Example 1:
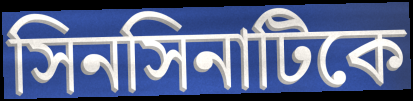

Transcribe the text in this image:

সিনসিনাটিকে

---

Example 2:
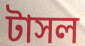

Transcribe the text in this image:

টাসল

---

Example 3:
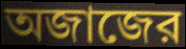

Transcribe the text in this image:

অজাজের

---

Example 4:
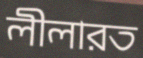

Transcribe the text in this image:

লীলারত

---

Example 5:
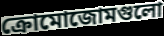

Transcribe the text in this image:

ক্রোমোজোমগুলো